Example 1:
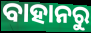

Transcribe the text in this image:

ବାହାନରୁ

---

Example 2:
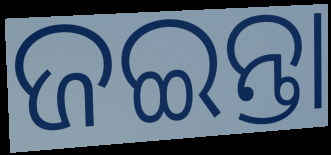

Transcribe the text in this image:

ଜଇନ୍ତା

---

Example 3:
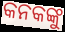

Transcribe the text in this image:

କନକଙ୍କୁ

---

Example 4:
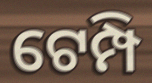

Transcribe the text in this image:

ଟେମ୍ପି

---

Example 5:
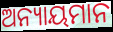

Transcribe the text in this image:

ଅନ୍ୟାୟମାନ